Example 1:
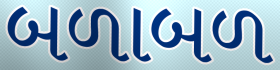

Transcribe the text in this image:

બળાબળ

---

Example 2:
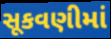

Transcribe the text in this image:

સૂકવણીમાં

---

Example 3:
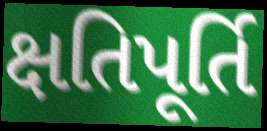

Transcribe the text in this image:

ક્ષતિપૂર્તિ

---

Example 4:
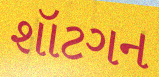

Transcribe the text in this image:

શૉટગન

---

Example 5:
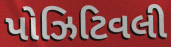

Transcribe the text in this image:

પોઝિટિવલી